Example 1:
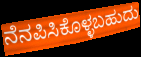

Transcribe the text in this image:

ನೆನಪಿಸಿಕೊಳ್ಳಬಹುದು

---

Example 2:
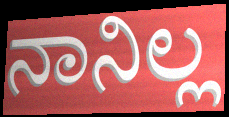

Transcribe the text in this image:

ನಾನಿಲ್ಲ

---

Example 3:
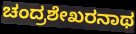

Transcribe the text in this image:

ಚಂದ್ರಶೇಖರನಾಥ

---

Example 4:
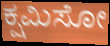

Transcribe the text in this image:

ಕ್ಷಮಿಸೋ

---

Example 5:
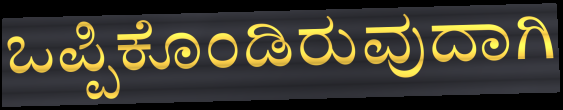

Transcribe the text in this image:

ಒಪ್ಪಿಕೊಂಡಿರುವುದಾಗಿ